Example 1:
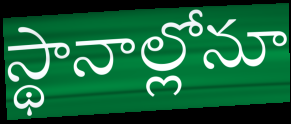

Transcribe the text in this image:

స్థానాల్లోనూ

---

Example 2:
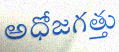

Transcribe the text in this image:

అధోజగత్తు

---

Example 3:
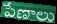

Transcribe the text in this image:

పేణాలు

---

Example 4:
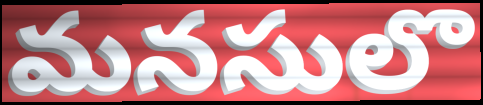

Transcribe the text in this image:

మనసులొ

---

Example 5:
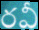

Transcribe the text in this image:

రవీ